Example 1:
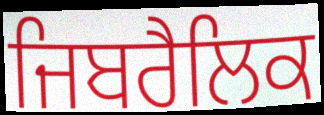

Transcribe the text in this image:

ਜਿਬਰੈਲਿਕ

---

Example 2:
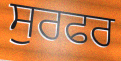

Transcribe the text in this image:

ਸੁਰਫਰ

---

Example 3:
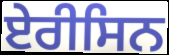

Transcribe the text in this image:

ਏਰੀਸਿਨ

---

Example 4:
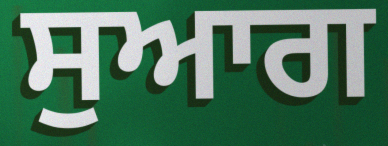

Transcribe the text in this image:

ਸੁਆਗ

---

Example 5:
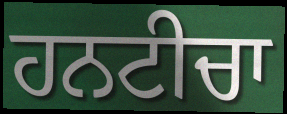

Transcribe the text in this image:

ਹਨਟੀਚਾ